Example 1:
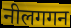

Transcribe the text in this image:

नीलगगन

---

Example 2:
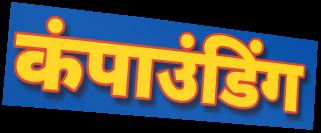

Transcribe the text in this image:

कंपाउंडिंग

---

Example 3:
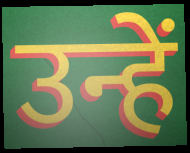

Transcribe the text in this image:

उन्हें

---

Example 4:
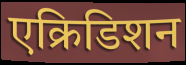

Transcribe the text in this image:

एक्रिडिशन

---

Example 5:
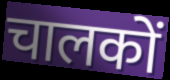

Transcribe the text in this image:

चालकों